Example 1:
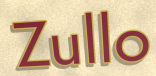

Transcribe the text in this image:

Zullo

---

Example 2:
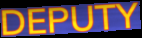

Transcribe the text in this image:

DEPUTY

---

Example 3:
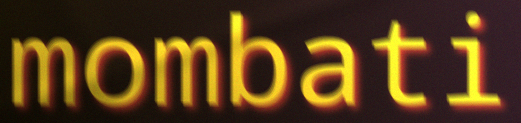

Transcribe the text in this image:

mombati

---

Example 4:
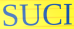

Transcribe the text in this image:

SUCI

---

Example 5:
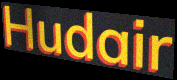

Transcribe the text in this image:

Hudair